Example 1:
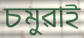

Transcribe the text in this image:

চমুৱাই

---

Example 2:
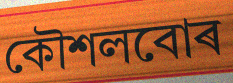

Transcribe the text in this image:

কৌশলবোৰ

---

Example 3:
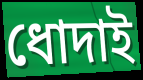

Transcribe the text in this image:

ধোদাই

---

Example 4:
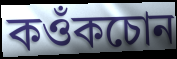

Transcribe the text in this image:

কওঁকচোন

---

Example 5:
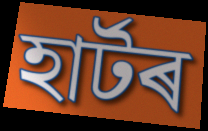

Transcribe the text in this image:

হাৰ্টৰ